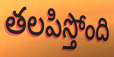
తలపిస్తోంది